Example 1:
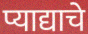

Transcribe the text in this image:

प्याद्याचे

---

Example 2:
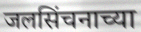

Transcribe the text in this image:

जलसिंचनाच्या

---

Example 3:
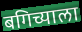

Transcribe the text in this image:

बगिच्याला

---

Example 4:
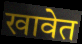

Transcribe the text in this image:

खावेत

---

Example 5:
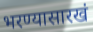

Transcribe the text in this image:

भरण्यासारखं